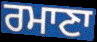
ਰਮਾਣਾ